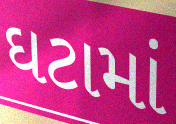
ઘટામાં